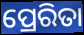
ପ୍ରେରିତା